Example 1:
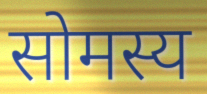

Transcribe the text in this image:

सोमस्य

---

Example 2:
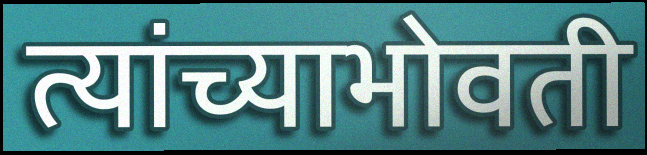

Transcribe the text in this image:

त्यांच्याभोवती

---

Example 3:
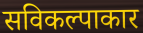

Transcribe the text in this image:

सविकल्पाकार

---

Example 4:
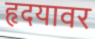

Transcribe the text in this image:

हृदयावर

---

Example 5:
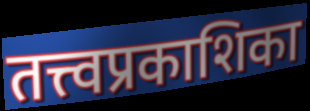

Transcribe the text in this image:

तत्त्वप्रकाशिका